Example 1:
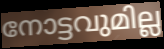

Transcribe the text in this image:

നോട്ടവുമില്ല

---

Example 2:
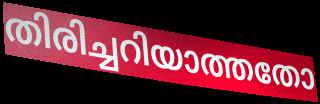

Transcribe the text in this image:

തിരിച്ചറിയാത്തതോ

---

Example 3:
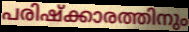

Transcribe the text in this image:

പരിഷ്ക്കാരത്തിനും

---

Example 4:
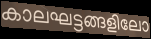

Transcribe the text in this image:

കാലഘട്ടങ്ങളിലോ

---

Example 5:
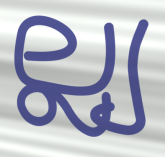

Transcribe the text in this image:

ല്ല്യ